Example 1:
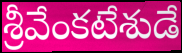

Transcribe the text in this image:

శ్రీవేంకటేశుడే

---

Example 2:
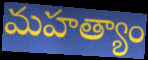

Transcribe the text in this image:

మహత్యాం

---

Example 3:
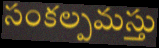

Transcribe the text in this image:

సంకల్పమస్తు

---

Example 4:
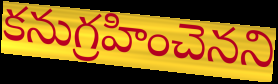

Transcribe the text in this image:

కనుగ్రహించెనని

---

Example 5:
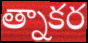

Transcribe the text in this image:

త్నాకర